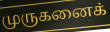
முருகனைக்